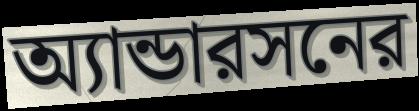
অ্যান্ডারসনের